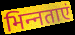
भिन्नताएं